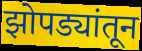
झोपड्यांतून